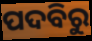
ପଦବିରୁ